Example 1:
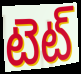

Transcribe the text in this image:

టెట్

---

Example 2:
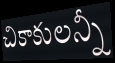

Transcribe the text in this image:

చికాకులన్నీ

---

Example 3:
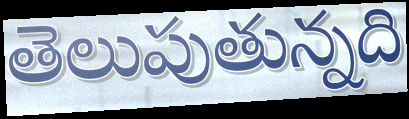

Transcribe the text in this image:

తెలుపుతున్నది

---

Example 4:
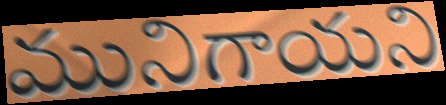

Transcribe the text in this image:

మునిగాయని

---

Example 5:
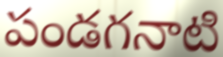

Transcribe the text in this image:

పండగనాటి